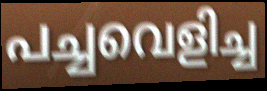
പച്ചവെളിച്ച